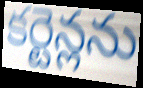
కర్టెన్లను